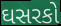
ઘસરકો